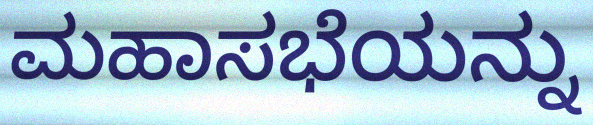
ಮಹಾಸಭೆಯನ್ನು